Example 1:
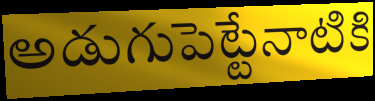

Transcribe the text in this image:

అడుగుపెట్టేనాటికి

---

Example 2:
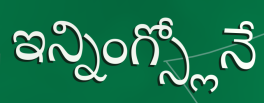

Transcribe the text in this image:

ఇన్నింగ్స్లోనే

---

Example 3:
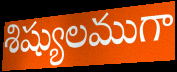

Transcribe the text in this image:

శిష్యులముగా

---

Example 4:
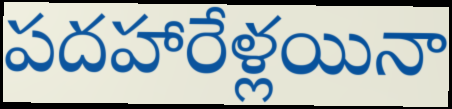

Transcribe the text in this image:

పదహారేళ్లయినా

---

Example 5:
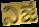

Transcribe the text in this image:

నిజే